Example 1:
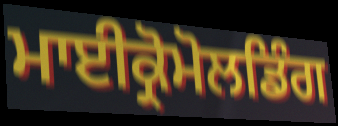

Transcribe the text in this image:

ਮਾਈਕ੍ਰੋਮੋਲਡਿੰਗ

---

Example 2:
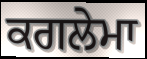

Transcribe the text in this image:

ਕਗਲੇਮਾ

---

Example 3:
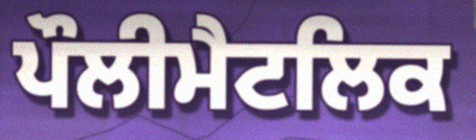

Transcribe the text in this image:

ਪੌਲੀਮੈਟਲਿਕ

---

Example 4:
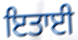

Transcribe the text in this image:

ਇਤਾਈ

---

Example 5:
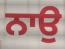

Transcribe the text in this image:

ਨਾਉ